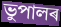
ভুপালৰ